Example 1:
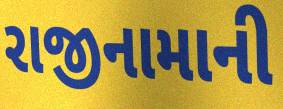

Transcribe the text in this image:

રાજીનામાની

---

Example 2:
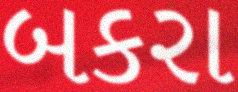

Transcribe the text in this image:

બકરા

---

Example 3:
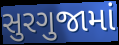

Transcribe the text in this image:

સુરગુજામાં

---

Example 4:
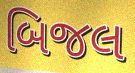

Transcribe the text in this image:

બિજલ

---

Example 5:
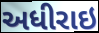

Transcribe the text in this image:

અધીરાઇ